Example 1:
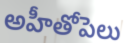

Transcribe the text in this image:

అహీతోపెలు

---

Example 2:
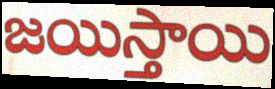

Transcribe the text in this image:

జయిస్తాయి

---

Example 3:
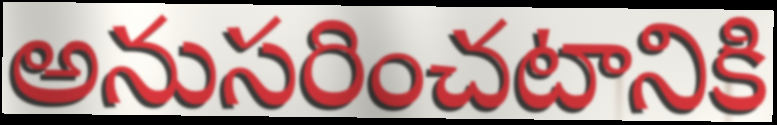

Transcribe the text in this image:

అనుసరించటానికి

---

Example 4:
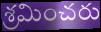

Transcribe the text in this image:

శ్రమించరు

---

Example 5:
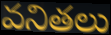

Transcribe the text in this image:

వనితలు